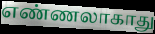
எண்ணலாகாது